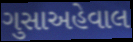
ગુસાઅહેવાલ